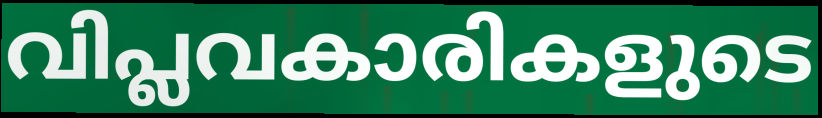
വിപ്ലവകാരികളുടെ